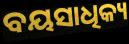
ବୟସାଧିକ୍ୟ